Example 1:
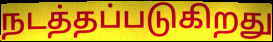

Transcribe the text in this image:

நடத்தப்படுகிறது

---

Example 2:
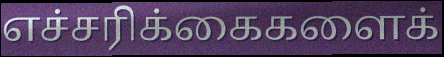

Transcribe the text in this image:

எச்சரிக்கைகளைக்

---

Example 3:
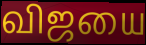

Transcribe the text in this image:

விஜயை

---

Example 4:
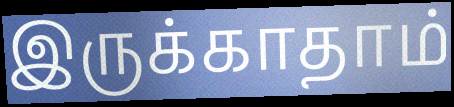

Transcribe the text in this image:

இருக்காதாம்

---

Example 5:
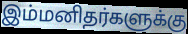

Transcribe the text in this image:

இம்மனிதர்களுக்கு